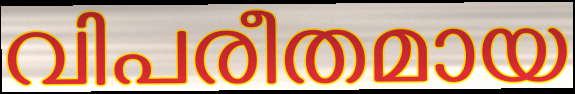
വിപരീതമായ